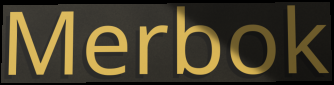
Merbok